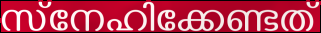
സ്‌നേഹിക്കേണ്ടത്